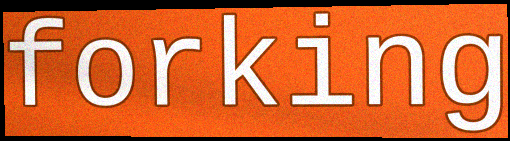
forking